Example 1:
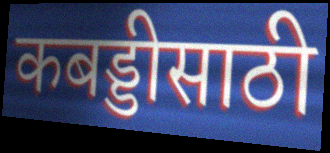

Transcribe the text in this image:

कबड्डीसाठी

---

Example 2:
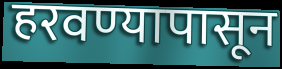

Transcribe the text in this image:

हरवण्यापासून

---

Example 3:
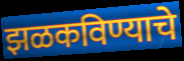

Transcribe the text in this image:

झळकविण्याचे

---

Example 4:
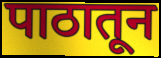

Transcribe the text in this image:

पाठातून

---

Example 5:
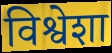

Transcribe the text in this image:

विश्वेशा